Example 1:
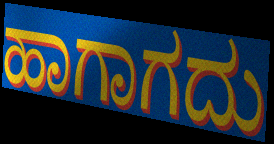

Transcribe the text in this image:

ಹಾಗಾಗದು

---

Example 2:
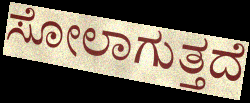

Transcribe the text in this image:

ಸೋಲಾಗುತ್ತದೆ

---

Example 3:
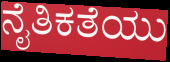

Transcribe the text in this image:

ನೈತಿಕತೆಯು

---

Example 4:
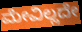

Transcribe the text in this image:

ಮೇವಿಲ್ಲದೇ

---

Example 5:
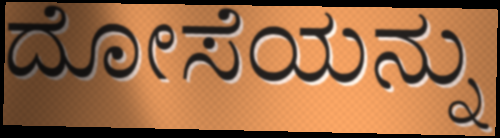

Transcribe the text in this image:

ದೋಸೆಯನ್ನು